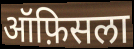
ऑफ़िसला